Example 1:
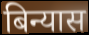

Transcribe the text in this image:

बिन्यास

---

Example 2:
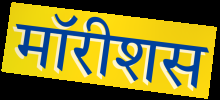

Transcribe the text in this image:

मॉरीशस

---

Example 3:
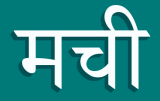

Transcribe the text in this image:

मची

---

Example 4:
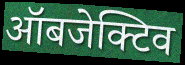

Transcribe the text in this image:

ऑबजेक्टिव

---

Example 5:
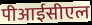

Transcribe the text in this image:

पीआईसीएल